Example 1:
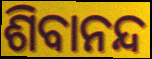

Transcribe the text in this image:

ଶିବାନନ୍ଦ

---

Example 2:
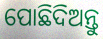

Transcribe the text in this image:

ପୋଛିଦିଅନ୍ତୁ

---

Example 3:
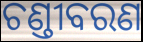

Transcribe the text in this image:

ଚଣ୍ଡୀବରଣ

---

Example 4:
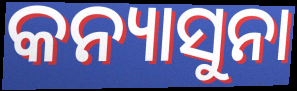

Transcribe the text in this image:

କନ୍ୟାସୁନା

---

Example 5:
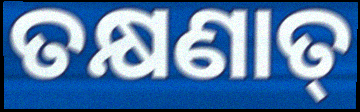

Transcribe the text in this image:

ତକ୍ଷଣାତ୍